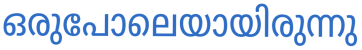
ഒരുപോലെയായിരുന്നു